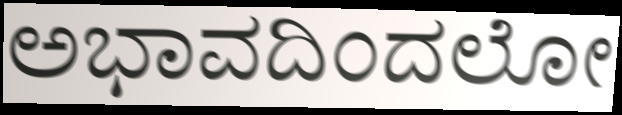
ಅಭಾವದಿಂದಲೋ